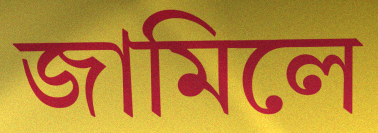
জামিলে